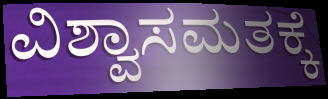
ವಿಶ್ವಾಸಮತಕ್ಕೆ